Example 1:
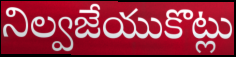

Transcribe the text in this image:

నిల్వజేయుకొట్లు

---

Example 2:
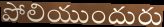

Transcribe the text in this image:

పోలియుందురు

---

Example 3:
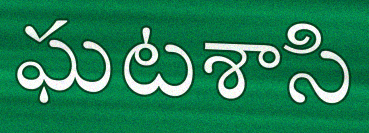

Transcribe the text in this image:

ఘటశాసి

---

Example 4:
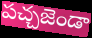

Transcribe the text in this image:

పచ్చజెండా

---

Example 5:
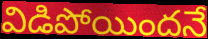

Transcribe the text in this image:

విడిపోయిందనే